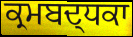
ਕ੍ਰਮਬਦ੍ਧਕਾ